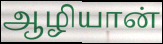
ஆழியான்